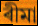
ৰীমা